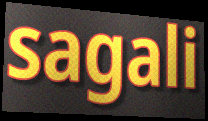
sagali